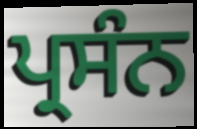
ਪ੍ਰਸੰਨ